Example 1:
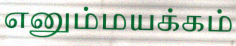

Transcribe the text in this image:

எனும்மயக்கம்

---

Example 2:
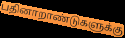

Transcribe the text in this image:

பதினாறாண்டுகளுக்கு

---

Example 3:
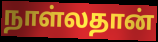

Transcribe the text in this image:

நாள்லதான்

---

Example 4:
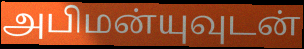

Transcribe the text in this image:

அபிமன்யுவுடன்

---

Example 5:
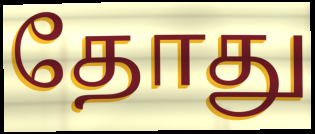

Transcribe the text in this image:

தோது